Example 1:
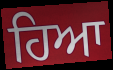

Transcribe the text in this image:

ਹਿਆ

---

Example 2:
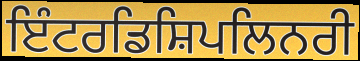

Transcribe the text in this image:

ਇੰਟਰਡਿਸ਼ਿਪਲਿਨਰੀ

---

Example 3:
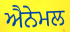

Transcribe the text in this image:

ਐਨੇਮਲ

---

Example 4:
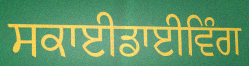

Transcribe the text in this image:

ਸਕਾਈਡਾਈਵਿੰਗ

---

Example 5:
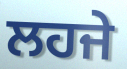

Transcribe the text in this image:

ਲਹਜੇ